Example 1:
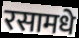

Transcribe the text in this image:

रसामधे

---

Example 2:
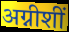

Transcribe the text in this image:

अग्नीशीं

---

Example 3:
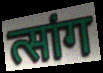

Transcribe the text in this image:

त्सांग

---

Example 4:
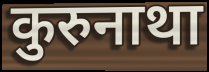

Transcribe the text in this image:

कुरुनाथा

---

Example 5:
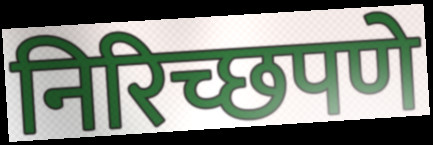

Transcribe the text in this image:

निरिच्छपणे